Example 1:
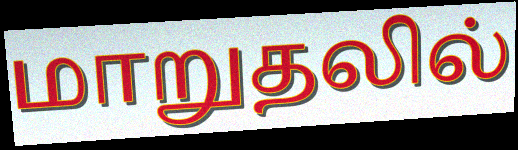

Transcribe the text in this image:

மாறுதலில்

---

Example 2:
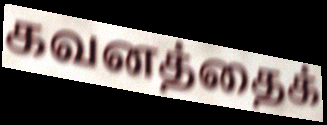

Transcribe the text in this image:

கவனத்தைக்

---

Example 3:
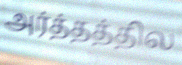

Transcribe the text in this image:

அர்த்தத்தில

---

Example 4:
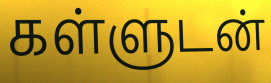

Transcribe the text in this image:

கள்ளுடன்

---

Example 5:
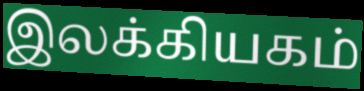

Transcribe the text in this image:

இலக்கியகம்